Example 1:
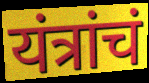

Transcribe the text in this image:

यंत्रांचं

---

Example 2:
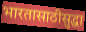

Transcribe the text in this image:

भारतासाठीसुद्धा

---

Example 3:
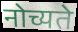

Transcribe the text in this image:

नोच्यते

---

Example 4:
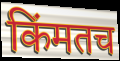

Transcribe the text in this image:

किंमतच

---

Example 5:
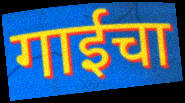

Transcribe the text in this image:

गाईचा